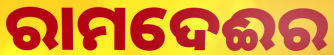
ରାମଦେଈର